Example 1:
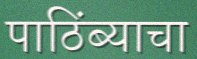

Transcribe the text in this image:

पाठिंब्याचा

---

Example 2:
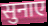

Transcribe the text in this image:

सुनाए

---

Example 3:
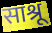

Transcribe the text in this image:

साश्रू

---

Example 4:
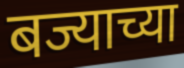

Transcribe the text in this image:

बज्याच्या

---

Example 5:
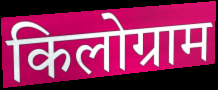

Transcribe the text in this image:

किलोग्राम